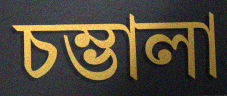
চম্ভালা